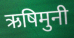
ऋषिमुनी